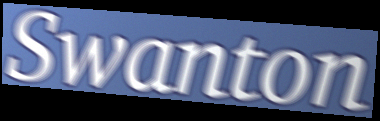
Swanton